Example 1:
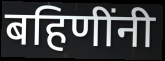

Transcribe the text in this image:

बहिणींनी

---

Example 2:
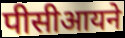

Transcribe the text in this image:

पीसीआयने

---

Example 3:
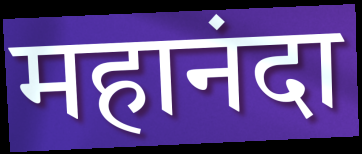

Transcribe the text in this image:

महानंदा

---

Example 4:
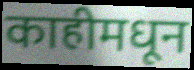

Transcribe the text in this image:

काहीमधून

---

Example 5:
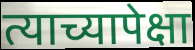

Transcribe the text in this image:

त्याच्यापेक्षा